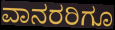
ವಾನರರಿಗೂ